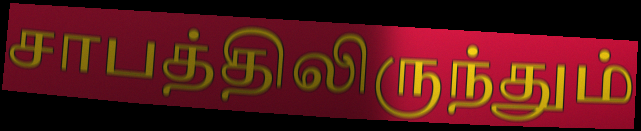
சாபத்திலிருந்தும்